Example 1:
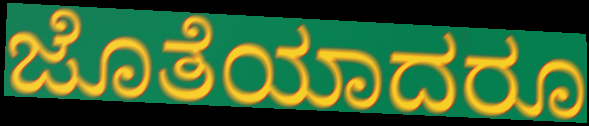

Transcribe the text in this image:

ಜೊತೆಯಾದರೂ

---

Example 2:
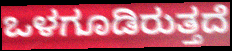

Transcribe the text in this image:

ಒಳಗೂಡಿರುತ್ತದೆ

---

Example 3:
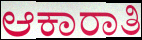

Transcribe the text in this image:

ಆಕಾರಾತಿ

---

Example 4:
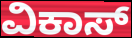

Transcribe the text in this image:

ವಿಕಾಸ್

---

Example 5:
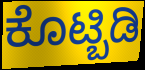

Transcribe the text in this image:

ಕೊಟ್ಬಿಡಿ